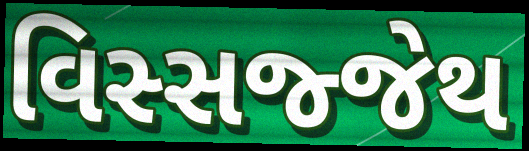
વિસ્સજ્જેથ